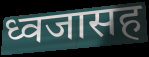
ध्वजासह